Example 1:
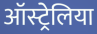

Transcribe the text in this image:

ऑस्‍ट्रेलिया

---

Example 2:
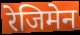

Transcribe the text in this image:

रेजिमेन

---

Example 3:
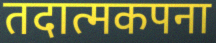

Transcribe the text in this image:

तदात्मकपना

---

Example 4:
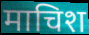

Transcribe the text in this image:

माचिश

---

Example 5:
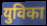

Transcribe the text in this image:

युविका